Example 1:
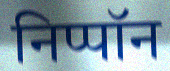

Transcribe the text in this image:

निप्पॉन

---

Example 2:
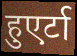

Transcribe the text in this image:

हुएर्टा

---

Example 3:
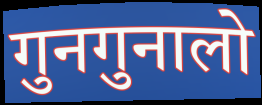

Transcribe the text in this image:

गुनगुनालो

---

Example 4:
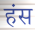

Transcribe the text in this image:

हंस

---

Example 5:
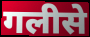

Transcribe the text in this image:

गलीसे